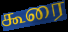
கூரை